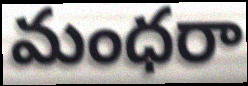
మంధరా